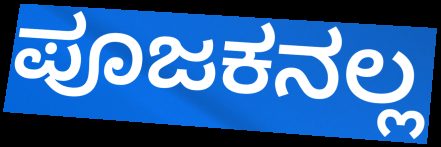
ಪೂಜಕನಲ್ಲ